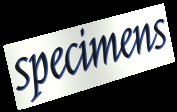
specimens